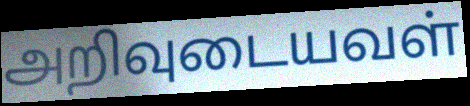
அறிவுடையவள்